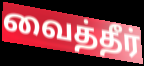
வைத்தீர்